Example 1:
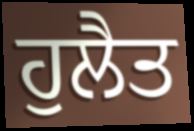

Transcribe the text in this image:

ਹੁਲੈਤ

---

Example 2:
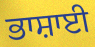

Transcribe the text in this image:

ਭਾਸ਼ਾਈ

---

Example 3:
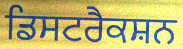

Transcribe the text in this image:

ਡਿਸਟਰੈਕਸ਼ਨ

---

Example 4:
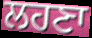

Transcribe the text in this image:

ਲਹਣਾ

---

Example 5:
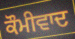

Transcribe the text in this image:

ਕੌਮੀਵਾਦ